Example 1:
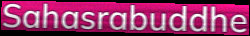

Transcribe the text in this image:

Sahasrabuddhe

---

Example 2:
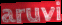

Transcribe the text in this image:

aruvi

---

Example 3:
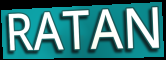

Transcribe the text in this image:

RATAN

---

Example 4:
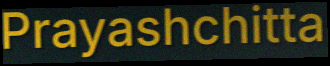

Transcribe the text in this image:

Prayashchitta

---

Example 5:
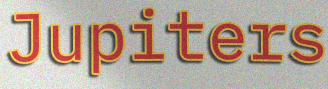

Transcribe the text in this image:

Jupiters